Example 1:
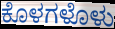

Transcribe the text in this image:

ಕೊಳಗಳೊಳು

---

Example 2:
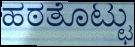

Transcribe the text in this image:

ಹಠತೊಟ್ಟು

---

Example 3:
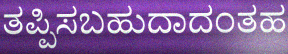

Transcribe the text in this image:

ತಪ್ಪಿಸಬಹುದಾದಂತಹ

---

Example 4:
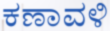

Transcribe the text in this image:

ಕಣಾವಳಿ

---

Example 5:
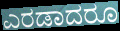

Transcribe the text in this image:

ಎರಡಾದರೂ